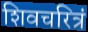
शिवचरित्रं